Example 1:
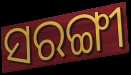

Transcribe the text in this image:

ସରଙ୍ଗୀ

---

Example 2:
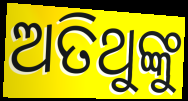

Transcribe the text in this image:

ଅତିଥୁଙ୍କୁ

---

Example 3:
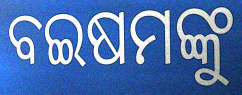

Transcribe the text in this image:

ବଇଷମଙ୍କୁ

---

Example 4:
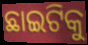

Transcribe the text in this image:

ଛାଇଟିକୁ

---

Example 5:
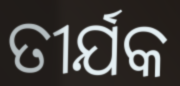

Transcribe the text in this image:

ତୀର୍ଯକ